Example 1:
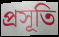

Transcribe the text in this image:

প্রসূতি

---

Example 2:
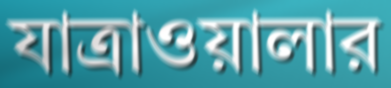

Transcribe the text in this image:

যাত্রাওয়ালার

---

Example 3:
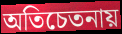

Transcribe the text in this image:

অতিচেতনায়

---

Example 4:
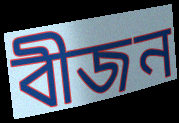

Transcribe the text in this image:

বীজন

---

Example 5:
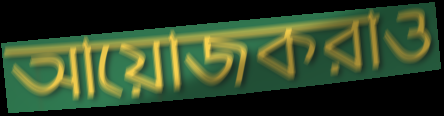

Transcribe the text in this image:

আয়োজকরাও